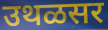
उथळसर